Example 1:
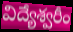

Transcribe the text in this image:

విద్యేశ్వరీం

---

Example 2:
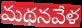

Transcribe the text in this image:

మథనవేళ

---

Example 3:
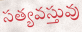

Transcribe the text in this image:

సత్యవస్తువు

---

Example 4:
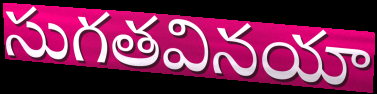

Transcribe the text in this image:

సుగతవినయా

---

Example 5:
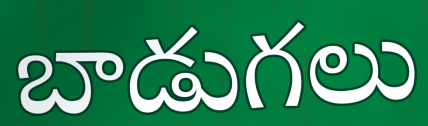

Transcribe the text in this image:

బాడుగలు